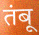
तंबू